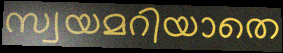
സ്വയമറിയാതെ